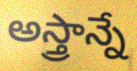
అస్త్రాన్నే